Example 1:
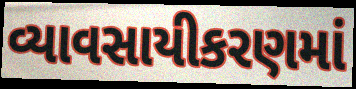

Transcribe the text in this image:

વ્યાવસાયીકરણમાં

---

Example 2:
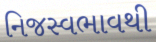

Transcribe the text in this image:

નિજસ્વભાવથી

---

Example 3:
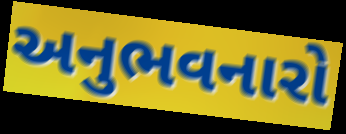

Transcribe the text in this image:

અનુભવનારો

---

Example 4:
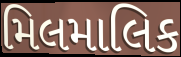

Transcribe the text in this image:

મિલમાલિક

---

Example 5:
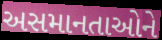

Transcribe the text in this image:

અસમાનતાઓને